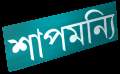
শাপমন্যি